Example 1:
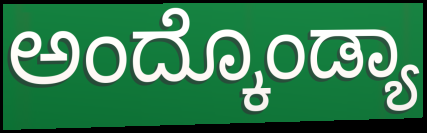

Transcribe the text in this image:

ಅಂದ್ಕೊಂಡ್ಯಾ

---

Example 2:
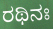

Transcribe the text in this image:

ರಥಿನಃ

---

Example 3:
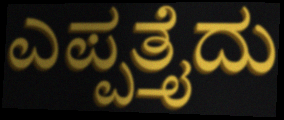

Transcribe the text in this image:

ಎಪ್ಪತ್ತೈದು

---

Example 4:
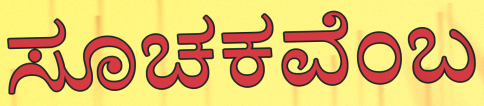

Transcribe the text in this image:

ಸೂಚಕವೆಂಬ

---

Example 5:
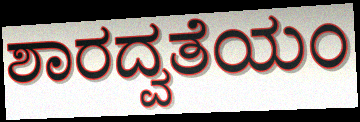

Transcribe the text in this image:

ಶಾರದ್ವತೆಯಂ